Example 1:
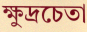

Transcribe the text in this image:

ক্ষুদ্রচেতা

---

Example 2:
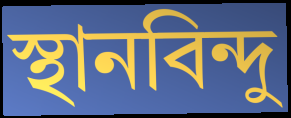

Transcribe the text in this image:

স্থানবিন্দু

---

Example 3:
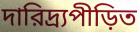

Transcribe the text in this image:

দারিদ্র্যপীড়িত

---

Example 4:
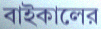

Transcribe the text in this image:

বাইকালের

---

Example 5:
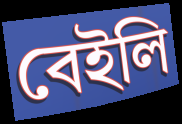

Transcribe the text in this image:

বেইলি